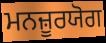
ਮਨਜ਼ੂਰਯੋਗ